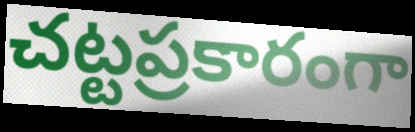
చట్టప్రకారంగా